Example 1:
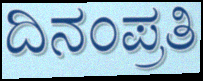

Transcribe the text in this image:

ದಿನಂಪ್ರತಿ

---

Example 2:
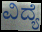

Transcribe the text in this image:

ವಿದ್ಯೆ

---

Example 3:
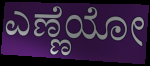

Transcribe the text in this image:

ಎಣ್ಣೆಯೋ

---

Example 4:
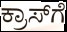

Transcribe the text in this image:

ಕ್ರಾಸ್‌ಗೆ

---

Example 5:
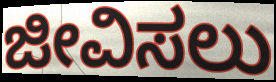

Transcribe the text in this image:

ಜೀವಿಸಲು